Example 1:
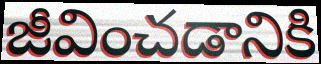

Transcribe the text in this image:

జీవించడానికి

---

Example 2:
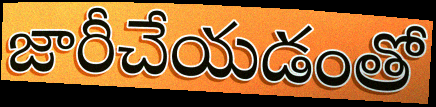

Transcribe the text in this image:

జారీచేయడంతో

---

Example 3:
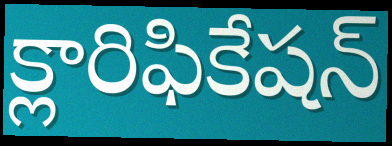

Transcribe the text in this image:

క్లారిఫికేషన్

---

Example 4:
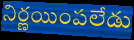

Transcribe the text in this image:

నిర్ణయింపలేడు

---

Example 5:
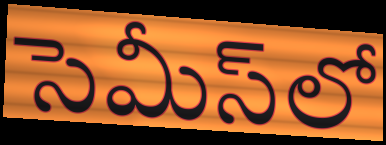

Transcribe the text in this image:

సెమీస్‌లో